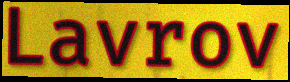
Lavrov